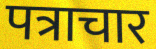
पत्राचार